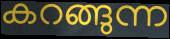
കറങ്ങുന്ന